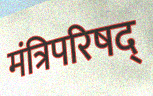
मंत्रिपरिषद्